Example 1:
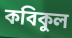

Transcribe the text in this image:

কবিকুল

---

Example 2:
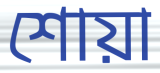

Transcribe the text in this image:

শোয়া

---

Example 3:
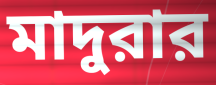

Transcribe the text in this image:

মাদুরার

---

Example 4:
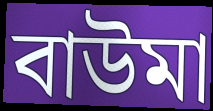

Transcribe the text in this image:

বাউমা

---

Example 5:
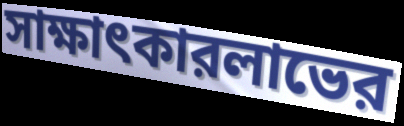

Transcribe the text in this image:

সাক্ষাৎকারলাভের